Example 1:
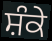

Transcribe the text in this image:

ਸ਼ੰਕੇ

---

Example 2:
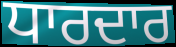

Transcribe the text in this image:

ਧਾਰਦਾਰ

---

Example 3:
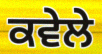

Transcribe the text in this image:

ਕਵੇਲੇ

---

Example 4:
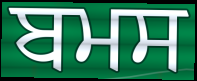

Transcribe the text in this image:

ਬਮਸ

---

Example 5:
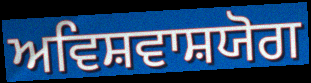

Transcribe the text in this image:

ਅਵਿਸ਼ਵਾਸ਼ਯੋਗ